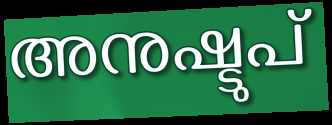
അനുഷ്ടുപ്